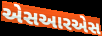
એસઆરએસ